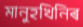
মানুহখিনিৰ